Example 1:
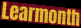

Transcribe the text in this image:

Learmonth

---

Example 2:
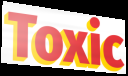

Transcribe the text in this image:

Toxic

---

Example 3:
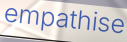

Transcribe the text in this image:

empathise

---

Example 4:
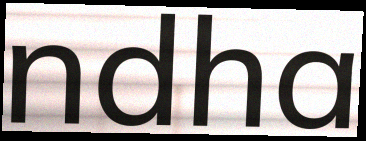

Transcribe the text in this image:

ndha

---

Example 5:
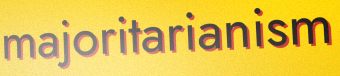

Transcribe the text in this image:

majoritarianism